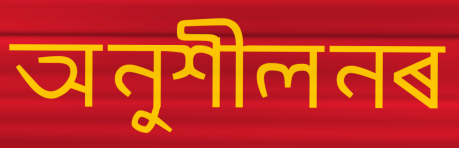
অনুশীলনৰ